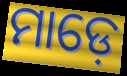
ମାଡ଼େ